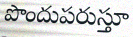
పొందుపరుస్తూ